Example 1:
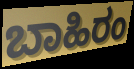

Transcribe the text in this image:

ಬಾಹಿರಂ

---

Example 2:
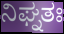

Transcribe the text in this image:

ನಿಘ್ನತಃ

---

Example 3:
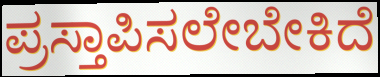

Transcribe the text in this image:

ಪ್ರಸ್ತಾಪಿಸಲೇಬೇಕಿದೆ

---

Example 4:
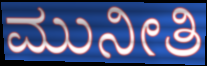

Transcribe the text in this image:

ಮುನೀತಿ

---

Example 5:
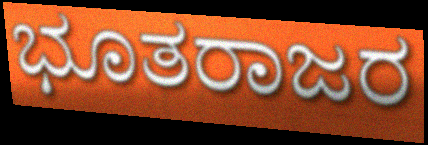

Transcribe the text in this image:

ಭೂತರಾಜರ